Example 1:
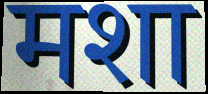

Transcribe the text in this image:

मशा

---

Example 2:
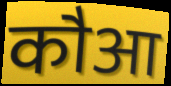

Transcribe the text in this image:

कौआ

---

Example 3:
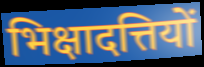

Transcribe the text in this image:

भिक्षादत्तियों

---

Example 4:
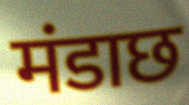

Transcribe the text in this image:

मंडाछ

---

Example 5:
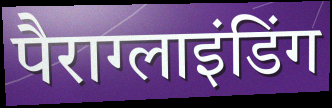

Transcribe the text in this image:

पैराग्लाइंडिंग